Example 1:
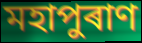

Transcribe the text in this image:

মহাপুৰাণ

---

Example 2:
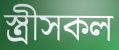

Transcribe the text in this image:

স্ত্ৰীসকল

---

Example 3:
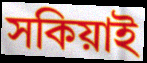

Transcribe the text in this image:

সকিয়াই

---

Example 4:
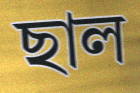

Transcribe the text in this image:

ছাল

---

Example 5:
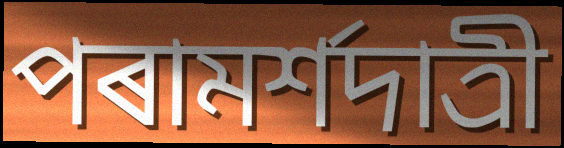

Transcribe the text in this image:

পৰামৰ্শদাত্ৰী